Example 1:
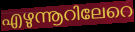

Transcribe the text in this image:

എഴുന്നൂറിലേറെ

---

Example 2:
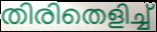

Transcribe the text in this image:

തിരിതെളിച്ച്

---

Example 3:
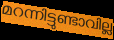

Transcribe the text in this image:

മറന്നിട്ടുണ്ടാവില്ല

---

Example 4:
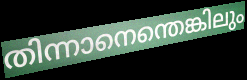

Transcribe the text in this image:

തിന്നാനെന്തെങ്കിലും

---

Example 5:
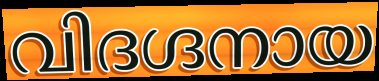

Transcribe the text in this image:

വിദഗ്ദനായ